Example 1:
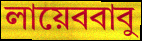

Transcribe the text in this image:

লায়েববাবু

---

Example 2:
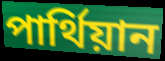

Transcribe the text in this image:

পার্থিয়ান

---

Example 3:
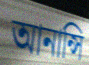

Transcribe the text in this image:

আনান্সি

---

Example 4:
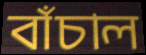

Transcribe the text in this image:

বাঁচাল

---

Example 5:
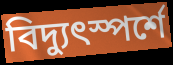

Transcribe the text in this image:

বিদ্যুৎস্পর্শে